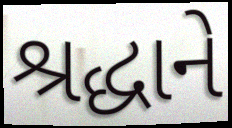
શ્રદ્ધાને